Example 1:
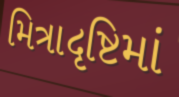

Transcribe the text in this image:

મિત્રાદૃષ્ટિમાં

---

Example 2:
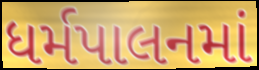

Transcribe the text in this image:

ધર્મપાલનમાં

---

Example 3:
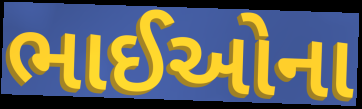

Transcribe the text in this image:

ભાઈઓના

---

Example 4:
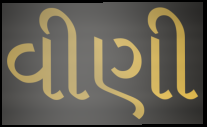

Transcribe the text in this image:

વીણી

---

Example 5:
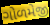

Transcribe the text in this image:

ગોળમેજી